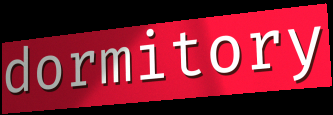
dormitory